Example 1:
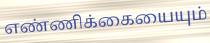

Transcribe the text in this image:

எண்ணிக்கையையும்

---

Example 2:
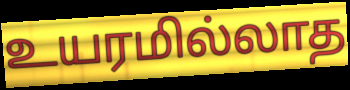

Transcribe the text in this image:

உயரமில்லாத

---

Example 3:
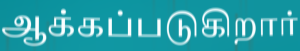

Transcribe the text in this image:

ஆக்கப்படுகிறார்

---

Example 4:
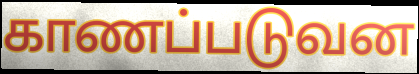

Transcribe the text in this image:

காணப்படுவன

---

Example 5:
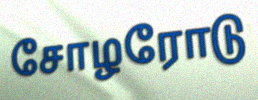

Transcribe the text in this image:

சோழரோடு